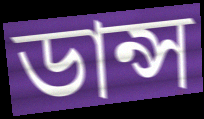
ডান্স